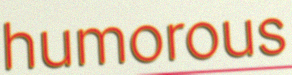
humorous